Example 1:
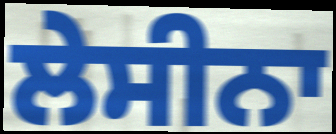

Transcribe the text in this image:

ਲੇਸੀਨਾ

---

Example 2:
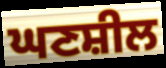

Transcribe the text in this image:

ਘਣਸ਼ੀਲ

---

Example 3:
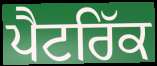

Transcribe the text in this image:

ਪੈਟਰਿੱਕ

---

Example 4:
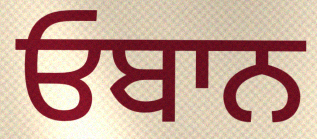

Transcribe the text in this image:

ਓਬਾਨ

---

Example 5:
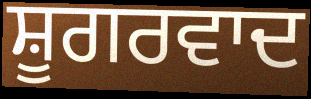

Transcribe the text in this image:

ਸ਼ੂਗਰਵਾਦ